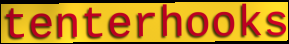
tenterhooks